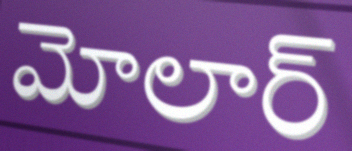
మోలార్